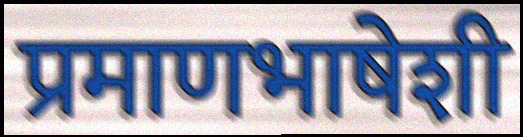
प्रमाणभाषेशी